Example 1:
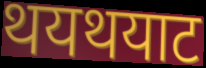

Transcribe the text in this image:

थयथयाट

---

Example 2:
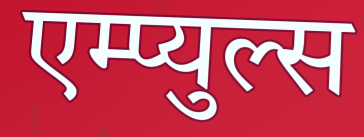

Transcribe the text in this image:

एम्प्युल्स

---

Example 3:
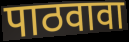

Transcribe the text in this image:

पाठवावा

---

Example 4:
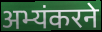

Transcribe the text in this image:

अभ्यंकरने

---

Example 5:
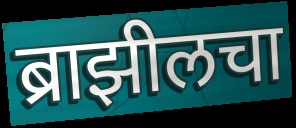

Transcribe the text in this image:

ब्राझीलचा